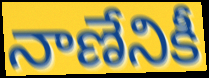
నాణేనికీ